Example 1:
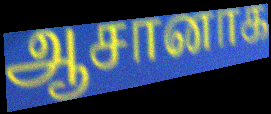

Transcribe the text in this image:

ஆசானாக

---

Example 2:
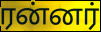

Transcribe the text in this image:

ரன்னர்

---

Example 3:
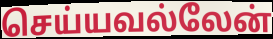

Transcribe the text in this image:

செய்யவல்லேன்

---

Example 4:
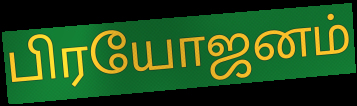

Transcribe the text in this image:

பிரயோஜனம்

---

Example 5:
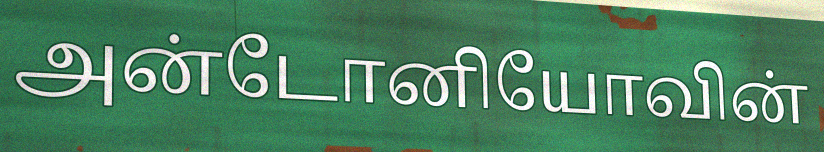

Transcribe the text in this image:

அன்டோனியோவின்